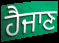
ਹੈਜਾਣ